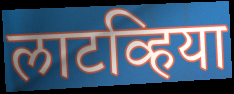
लाटव्हिया